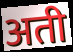
अती